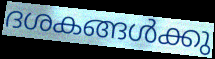
ദശകങ്ങൾക്കു